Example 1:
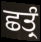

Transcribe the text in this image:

ਛਤ੍ਰੰ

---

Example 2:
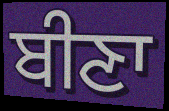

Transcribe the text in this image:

ਬੀਣਾ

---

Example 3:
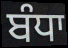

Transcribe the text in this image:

ਬੰਧਾ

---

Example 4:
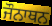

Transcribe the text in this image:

ਜੌਨਾਥਨ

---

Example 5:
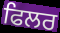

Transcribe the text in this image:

ਫਿਲਰ